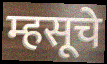
म्हसूचे